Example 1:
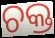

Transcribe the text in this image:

ଚକ୍ତ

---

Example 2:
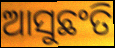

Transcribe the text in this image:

ଆସୁଛଂତି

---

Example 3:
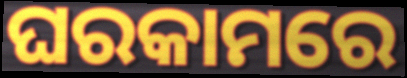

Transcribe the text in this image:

ଘରକାମରେ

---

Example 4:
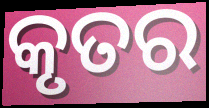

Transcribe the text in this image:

କୃତର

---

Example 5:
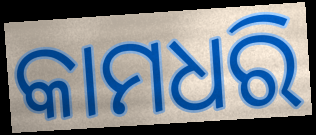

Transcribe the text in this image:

କାମଧରି